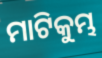
ମାଟିକୁମ୍ଭ